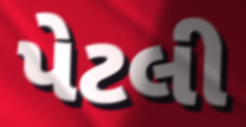
પેટલી